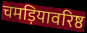
चमड़ियावरिष्ठ